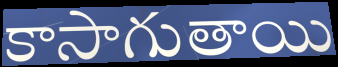
కాసాగుతాయి